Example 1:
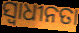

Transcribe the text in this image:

ସ୍ବାଧୀନତା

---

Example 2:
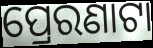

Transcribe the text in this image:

ପ୍ରେରଣାଟା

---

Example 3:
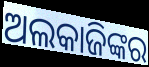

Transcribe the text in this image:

ଅଲକାଜିଙ୍କର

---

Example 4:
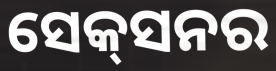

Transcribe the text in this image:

ସେକ୍‌ସନର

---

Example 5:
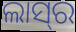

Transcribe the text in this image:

ଲାସ୍‌ର